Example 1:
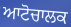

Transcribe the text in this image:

ਆਟੋਚਾਲਕ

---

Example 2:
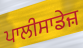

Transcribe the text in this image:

ਪਾਲੀਸਾਡੇਜ਼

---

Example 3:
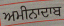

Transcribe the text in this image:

ਅਮੀਨਾਦਾਬ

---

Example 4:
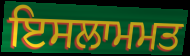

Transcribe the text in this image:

ਇਸਲਾਮਮਤ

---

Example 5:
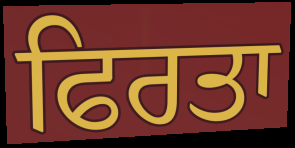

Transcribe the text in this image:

ਫਿਰਤਾ